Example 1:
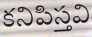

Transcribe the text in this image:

కనిపిస్తవి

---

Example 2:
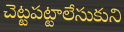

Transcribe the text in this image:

చెట్టపట్టాలేసుకుని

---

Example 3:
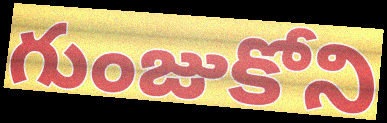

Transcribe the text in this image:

గుంజుకోని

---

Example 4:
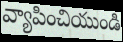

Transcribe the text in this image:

వ్యాపించియుండి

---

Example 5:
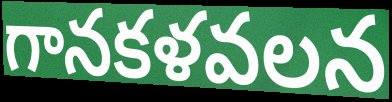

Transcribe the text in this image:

గానకళవలన